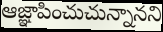
ఆజ్ఞాపించుచున్నానని